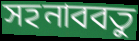
সহনাববতু